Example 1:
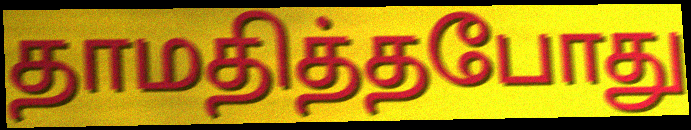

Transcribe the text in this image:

தாமதித்தபோது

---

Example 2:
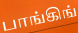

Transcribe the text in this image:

பாங்கிங்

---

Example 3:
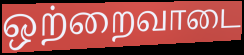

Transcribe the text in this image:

ஒற்றைவாடை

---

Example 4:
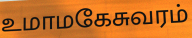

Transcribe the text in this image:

உமாமகேசுவரம்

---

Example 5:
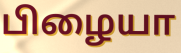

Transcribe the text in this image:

பிழையா